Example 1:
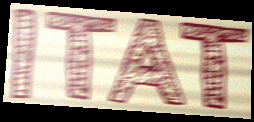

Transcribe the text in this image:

ITAT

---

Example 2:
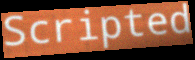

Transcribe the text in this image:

Scripted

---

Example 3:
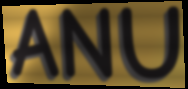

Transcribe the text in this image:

ANU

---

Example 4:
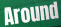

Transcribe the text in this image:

Around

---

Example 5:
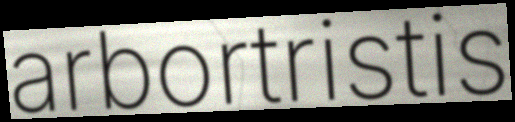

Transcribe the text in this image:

arbortristis